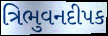
ત્રિભુવનદીપક